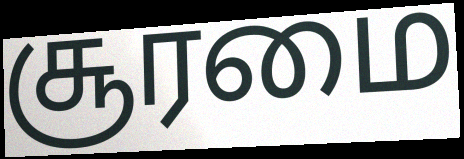
சூரமை